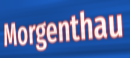
Morgenthau